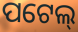
ପଟେଲ୍